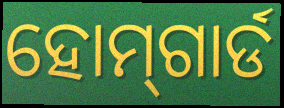
ହୋମ୍‌ଗାର୍ଡ